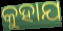
କୁହାଯ